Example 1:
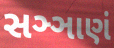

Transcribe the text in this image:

સઞ્ઞાણં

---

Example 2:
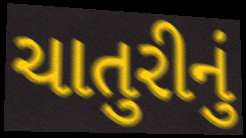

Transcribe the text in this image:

ચાતુરીનું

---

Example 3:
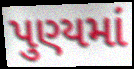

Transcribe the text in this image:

પુણ્યમાં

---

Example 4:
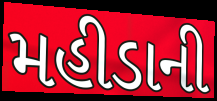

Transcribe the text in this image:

મહીડાની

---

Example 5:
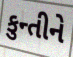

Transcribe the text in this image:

કુન્તીને